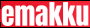
emakku